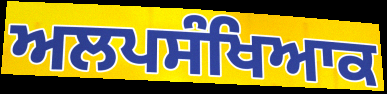
ਅਲਪਸੰਖਿਆਕ